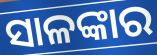
ସାଳଙ୍କାର